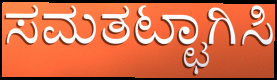
ಸಮತಟ್ಟಾಗಿಸಿ